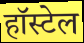
हॉस्टेल